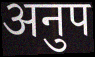
अनुप